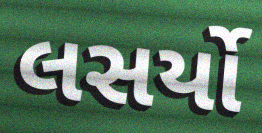
લસર્યો